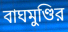
বাঘমুণ্ডির